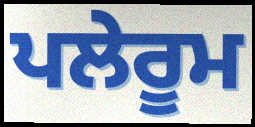
ਪਲੇਰੂਮ